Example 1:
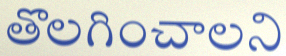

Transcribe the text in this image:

తొలగించాలని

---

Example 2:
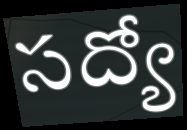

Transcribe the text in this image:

సద్యో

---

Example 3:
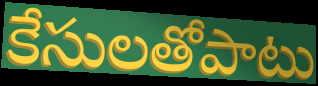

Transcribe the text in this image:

కేసులతోపాటు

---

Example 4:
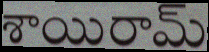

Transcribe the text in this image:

శాయిరామ్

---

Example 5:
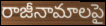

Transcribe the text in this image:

రాజీనామాలపై